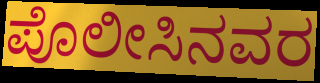
ಪೊಲೀಸಿನವರ